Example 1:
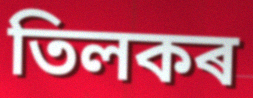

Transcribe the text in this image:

তিলকৰ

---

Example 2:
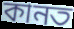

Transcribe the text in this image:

কানত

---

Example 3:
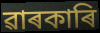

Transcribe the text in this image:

ৱাৰকাৰি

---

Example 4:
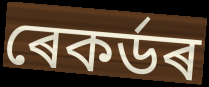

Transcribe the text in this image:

ৰেকৰ্ডৰ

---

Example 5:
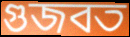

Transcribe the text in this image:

গুজবত